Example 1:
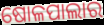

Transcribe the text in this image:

ଷୋଳପାଲାର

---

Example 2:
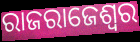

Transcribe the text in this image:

ରାଜରାଜେଶ୍ଵର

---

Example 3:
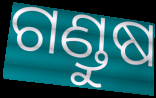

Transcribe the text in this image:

ଗଣ୍ଡୁଷ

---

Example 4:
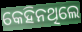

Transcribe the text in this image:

କେହିନଥିଲେ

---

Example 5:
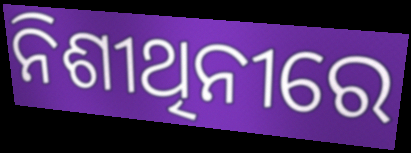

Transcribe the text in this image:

ନିଶୀଥିନୀରେ